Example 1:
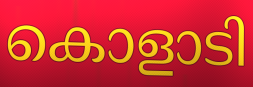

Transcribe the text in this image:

കൊളാടി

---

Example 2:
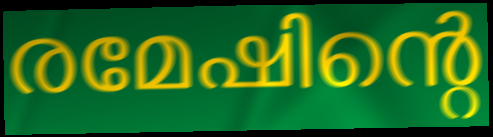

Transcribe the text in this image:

രമേഷിന്റെ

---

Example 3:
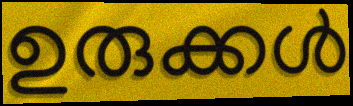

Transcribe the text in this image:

ഉരുക്കൾ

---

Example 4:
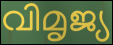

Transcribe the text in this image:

വിമൃജ്യ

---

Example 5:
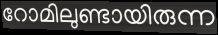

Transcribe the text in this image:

റോമിലുണ്ടായിരുന്ന